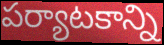
పర్యాటకాన్ని